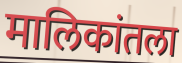
मालिकांतला